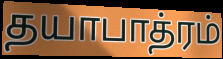
தயாபாத்ரம்